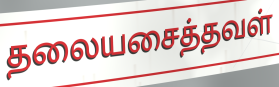
தலையசைத்தவள்